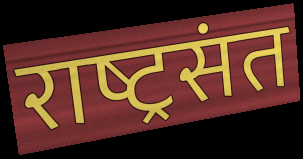
राष्ट्रसंत